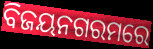
ବିଜୟନଗରମରେ